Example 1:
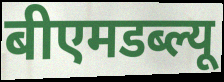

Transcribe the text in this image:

बीएमडब्ल्यू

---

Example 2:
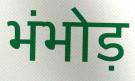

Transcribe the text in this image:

भंभोड़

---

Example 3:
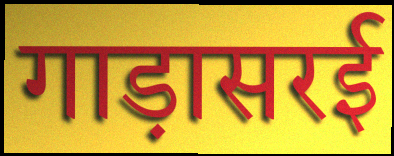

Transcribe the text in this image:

गाड़ासरई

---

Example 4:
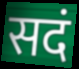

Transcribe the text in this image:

सदं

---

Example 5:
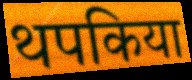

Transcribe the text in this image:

थपकिया